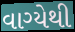
વાગ્યેથી